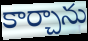
కార్చాను